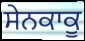
ਸੇਨਕਾਕੂ